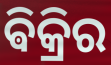
ଵିକ୍ରିର